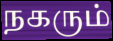
நகரும்